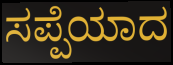
ಸಪ್ಪೆಯಾದ